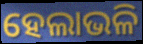
ହେଲାଭଳି